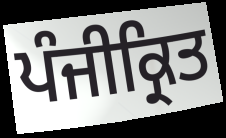
ਪੰਜੀਕ੍ਰਿਤ